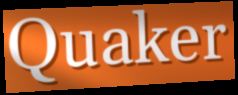
Quaker